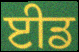
ਈਡ